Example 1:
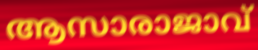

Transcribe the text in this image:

ആസാരാജാവ്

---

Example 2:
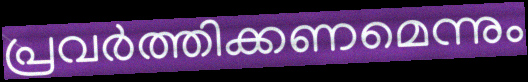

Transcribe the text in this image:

പ്രവർത്തിക്കണമെന്നും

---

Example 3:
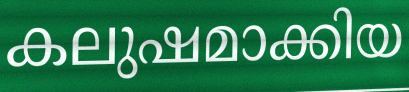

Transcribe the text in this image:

കലുഷമാക്കിയ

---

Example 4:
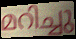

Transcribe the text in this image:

മറിച്ചു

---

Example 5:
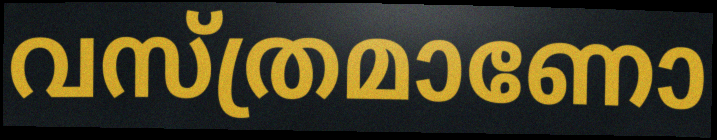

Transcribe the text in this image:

വസ്ത്രമാണോ